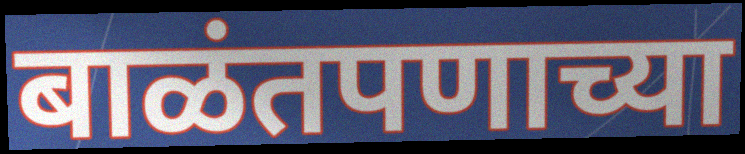
बाळंतपणाच्या